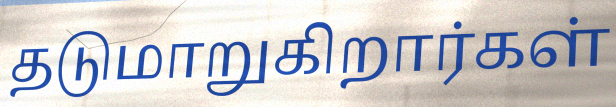
தடுமாறுகிறார்கள்